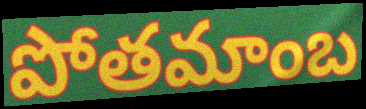
పోతమాంబ